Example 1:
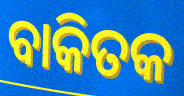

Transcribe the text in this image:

ବାକିତକ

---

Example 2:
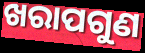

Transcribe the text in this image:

ଖରାପଗୁଣ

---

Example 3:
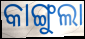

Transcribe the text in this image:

କାଙ୍ଗୁଲା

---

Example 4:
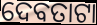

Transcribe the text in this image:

ଦେବତାଟା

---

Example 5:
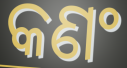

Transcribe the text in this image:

କଣଂ